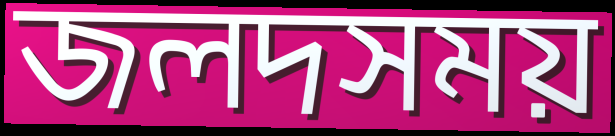
জলদসময়